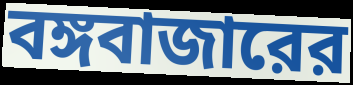
বঙ্গবাজারের